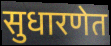
सुधारणेत